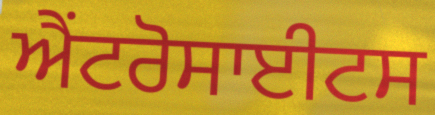
ਐਂਟਰੋਸਾਈਟਸ